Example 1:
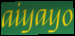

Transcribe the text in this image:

aiyayo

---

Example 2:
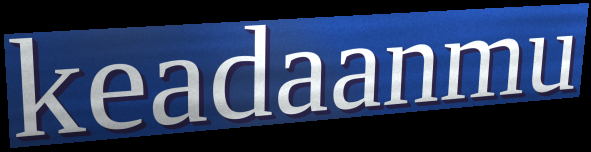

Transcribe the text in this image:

keadaanmu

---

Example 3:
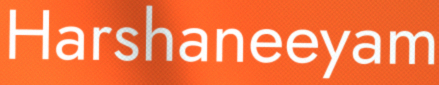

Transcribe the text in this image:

Harshaneeyam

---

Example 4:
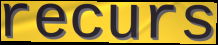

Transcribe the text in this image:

recurs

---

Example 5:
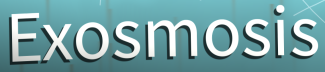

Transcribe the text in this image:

Exosmosis